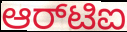
ಆರ್‌ಟಿಐ